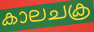
കാലചക്ര